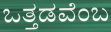
ಒತ್ತಡವೆಂಬ